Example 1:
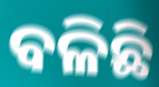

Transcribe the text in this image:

ବଳିଛି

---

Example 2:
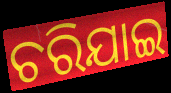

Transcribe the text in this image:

ଚରିଯାଇ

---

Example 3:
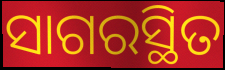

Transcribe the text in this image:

ସାଗରସ୍ଥିତ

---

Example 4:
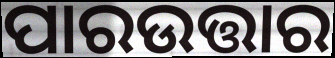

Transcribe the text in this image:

ପାରଉତ୍ତାର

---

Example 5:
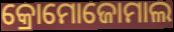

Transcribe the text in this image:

କ୍ରୋମୋଜୋମାଲ